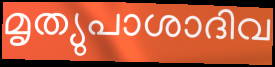
മൃത്യുപാശാദിവ